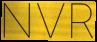
NVR